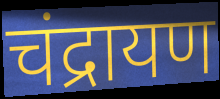
चंद्रायण